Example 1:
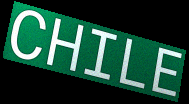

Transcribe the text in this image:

CHILE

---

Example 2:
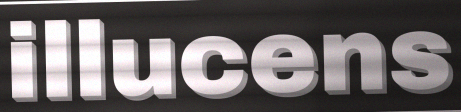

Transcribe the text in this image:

illucens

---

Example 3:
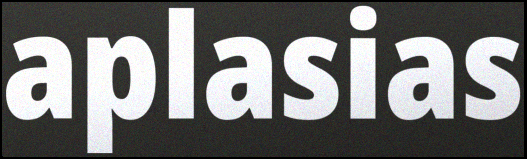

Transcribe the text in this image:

aplasias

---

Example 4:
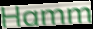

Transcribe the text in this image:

Hamm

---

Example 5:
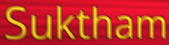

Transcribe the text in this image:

Suktham